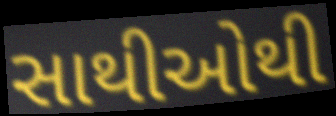
સાથીઓથી